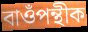
বাওঁপন্থীক